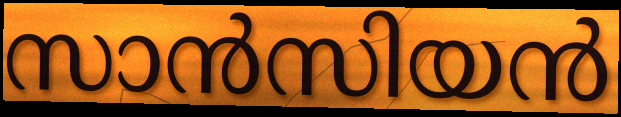
സാൻസിയൻ